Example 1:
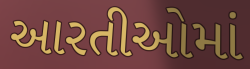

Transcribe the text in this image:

આરતીઓમાં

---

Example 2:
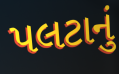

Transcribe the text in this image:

પલટાનું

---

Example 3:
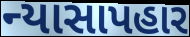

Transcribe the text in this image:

ન્યાસાપહાર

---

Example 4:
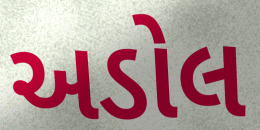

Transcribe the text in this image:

અડોલ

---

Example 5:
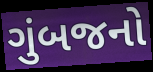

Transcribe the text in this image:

ગુંબજનો